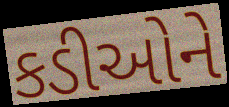
કડીઓને